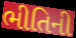
ભીતિની